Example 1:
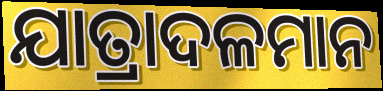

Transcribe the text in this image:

ଯାତ୍ରାଦଳମାନ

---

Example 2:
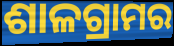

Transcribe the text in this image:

ଶାଳଗ୍ରାମର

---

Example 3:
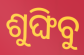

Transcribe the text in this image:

ଶୁଙ୍ଘିବୁ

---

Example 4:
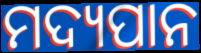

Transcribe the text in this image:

ମଦ୍ୟପାନ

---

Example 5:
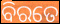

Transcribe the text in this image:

ବିରତେ